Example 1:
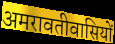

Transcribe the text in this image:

अमरावतीवासियों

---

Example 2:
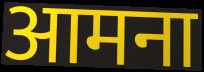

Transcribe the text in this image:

आमना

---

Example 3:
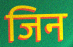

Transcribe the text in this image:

जिन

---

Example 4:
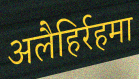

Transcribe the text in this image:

अलैहिर्रहमा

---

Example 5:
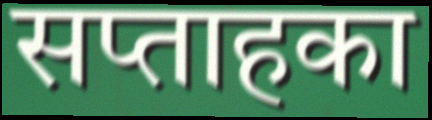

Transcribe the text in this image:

सप्ताहका